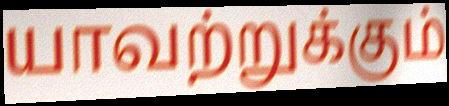
யாவற்றுக்கும்